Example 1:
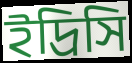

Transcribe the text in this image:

ইদ্রিসি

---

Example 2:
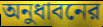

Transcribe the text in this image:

অনুধাবনের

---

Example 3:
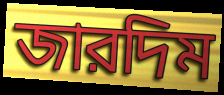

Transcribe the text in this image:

জারদিম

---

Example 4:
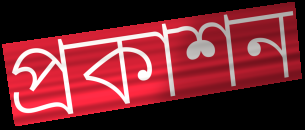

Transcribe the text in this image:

প্রকাশন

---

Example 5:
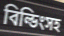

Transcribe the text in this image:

বিল্ডিংসহ